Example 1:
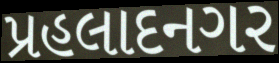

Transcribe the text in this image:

પ્રહલાદનગર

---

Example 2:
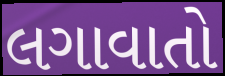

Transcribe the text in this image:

લગાવાતો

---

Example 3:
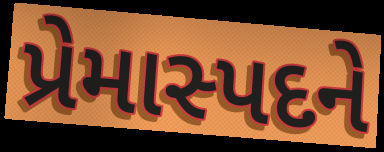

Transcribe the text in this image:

પ્રેમાસ્પદને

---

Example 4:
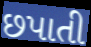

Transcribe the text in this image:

છપાતી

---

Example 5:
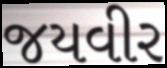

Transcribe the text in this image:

જયવીર